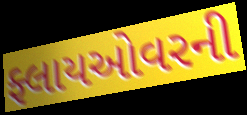
ફ્લાયઓવરની